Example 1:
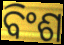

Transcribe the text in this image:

ବିଂଶ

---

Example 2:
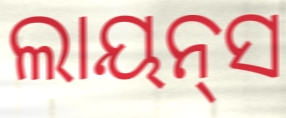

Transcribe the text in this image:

ଲାୟନ୍‌ସ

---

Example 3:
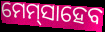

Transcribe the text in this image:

ମେମ୍‌ସାହେବ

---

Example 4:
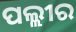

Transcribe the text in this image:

ପଲ୍ଲୀର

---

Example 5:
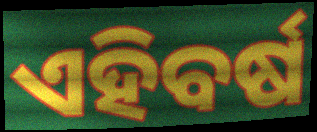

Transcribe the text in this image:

ଏହିବର୍ଷ